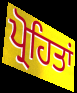
ਪ੍ਰੋਹਿਤਾਂ